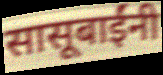
सासूबाईंनी